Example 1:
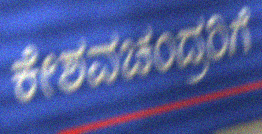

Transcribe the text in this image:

ಕೇಶವಚಂದ್ರರಿಗೆ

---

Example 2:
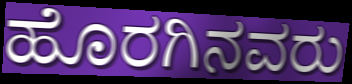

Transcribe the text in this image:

ಹೊರಗಿನವರು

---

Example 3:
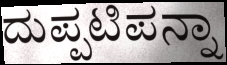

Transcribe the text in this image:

ದುಪ್ಪಟಿಪನ್ನಾ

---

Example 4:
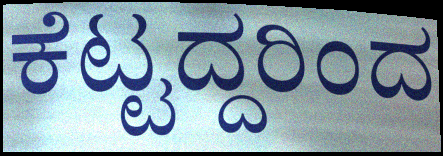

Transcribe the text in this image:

ಕೆಟ್ಟದ್ದರಿಂದ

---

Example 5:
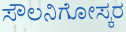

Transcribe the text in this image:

ಸೌಲನಿಗೋಸ್ಕರ